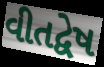
વીતદ્વેષ